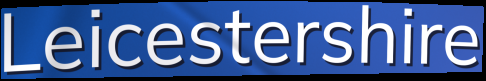
Leicestershire